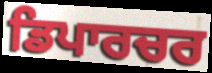
ਡਿਪਾਰਚਰ